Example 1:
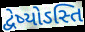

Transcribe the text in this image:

દ્વેષ્યોઽસ્તિ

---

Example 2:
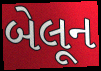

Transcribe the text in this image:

બેલૂન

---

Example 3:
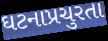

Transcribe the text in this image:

ઘટનાપ્રચુરતા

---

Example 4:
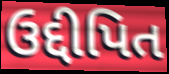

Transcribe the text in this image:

ઉદ્દીપિત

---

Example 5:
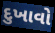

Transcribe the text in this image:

દુખાવો